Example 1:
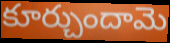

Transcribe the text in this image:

కూర్చుందామె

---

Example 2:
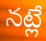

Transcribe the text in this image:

నట్లే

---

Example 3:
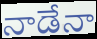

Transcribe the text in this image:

నాడేనా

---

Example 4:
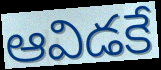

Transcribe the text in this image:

ఆవిడకే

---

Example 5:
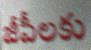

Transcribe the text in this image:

జీపీలకు